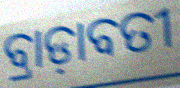
ବ୍ରାଡ଼ାବତୀ